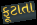
ફૂટાતા